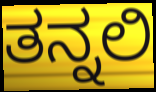
ತನ್ನಲಿ